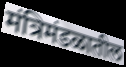
मंत्रिमंडळातील